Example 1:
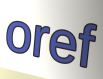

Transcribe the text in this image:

oref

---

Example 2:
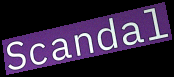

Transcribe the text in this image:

Scandal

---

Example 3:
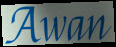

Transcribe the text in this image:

Awan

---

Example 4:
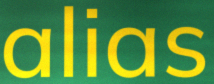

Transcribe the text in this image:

alias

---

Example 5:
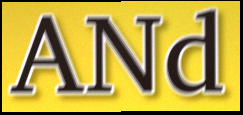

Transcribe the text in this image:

ANd